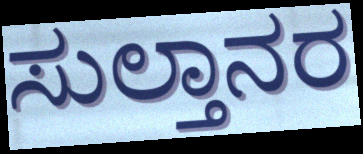
ಸುಲ್ತಾನರ